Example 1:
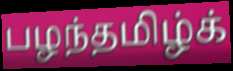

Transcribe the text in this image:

பழந்தமிழ்க்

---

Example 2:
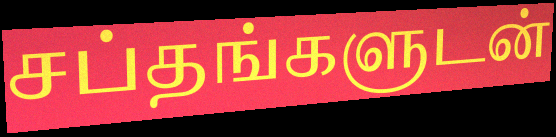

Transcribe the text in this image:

சப்தங்களுடன்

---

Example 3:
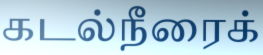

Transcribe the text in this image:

கடல்நீரைக்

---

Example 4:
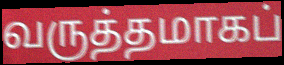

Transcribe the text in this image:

வருத்தமாகப்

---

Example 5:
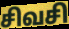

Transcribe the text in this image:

சிவசி